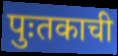
पुःतकाची